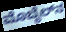
ಮೊಬೈಲ್‌ನ